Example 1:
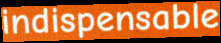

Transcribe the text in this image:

indispensable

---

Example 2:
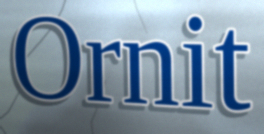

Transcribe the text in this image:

Ornit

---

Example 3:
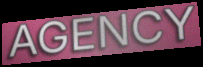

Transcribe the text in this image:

AGENCY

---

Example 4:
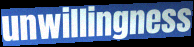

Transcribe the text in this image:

unwillingness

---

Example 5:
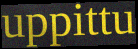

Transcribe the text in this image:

uppittu